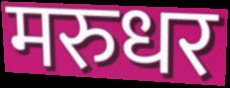
मरुधर